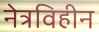
नेत्रविहीन